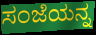
ಸಂಜೆಯನ್ನ